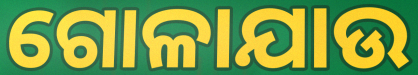
ଗୋଳାଯାଉ